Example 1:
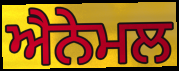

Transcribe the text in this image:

ਐਨੇਮਲ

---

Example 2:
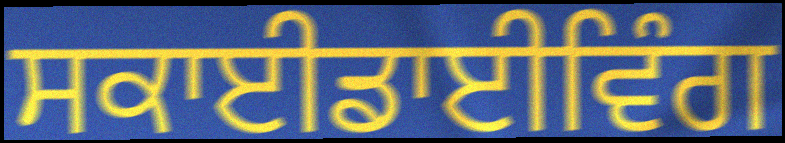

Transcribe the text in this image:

ਸਕਾਈਡਾਈਵਿੰਗ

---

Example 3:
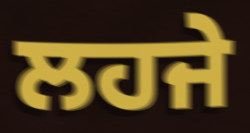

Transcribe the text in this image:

ਲਹਜੇ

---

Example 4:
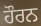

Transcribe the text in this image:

ਹੌਰਨ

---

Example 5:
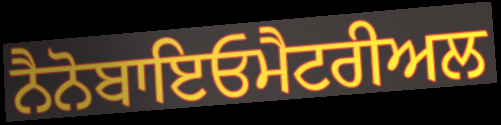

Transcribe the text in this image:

ਨੈਨੋਬਾਇਓਮੈਟਰੀਅਲ